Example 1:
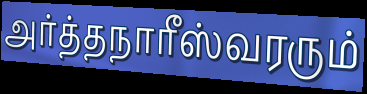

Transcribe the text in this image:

அர்த்தநாரீஸ்வரரும்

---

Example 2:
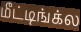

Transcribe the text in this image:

மீட்டிங்க்ல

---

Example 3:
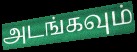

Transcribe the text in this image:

அடங்கவும்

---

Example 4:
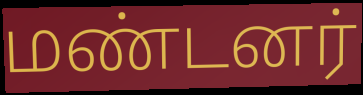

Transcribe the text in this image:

மண்டனர்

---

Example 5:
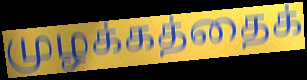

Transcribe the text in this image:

முழக்கத்தைக்